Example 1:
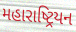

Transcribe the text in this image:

મહારાષ્ટ્રિયન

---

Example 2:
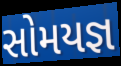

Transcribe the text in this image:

સોમયજ્ઞ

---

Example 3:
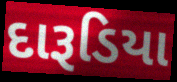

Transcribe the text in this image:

દારૂડિયા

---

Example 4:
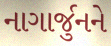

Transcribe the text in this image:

નાગાર્જુનને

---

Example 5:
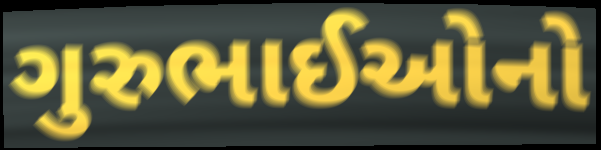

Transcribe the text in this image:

ગુરુભાઈઓનો